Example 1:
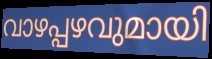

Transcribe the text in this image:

വാഴപ്പഴവുമായി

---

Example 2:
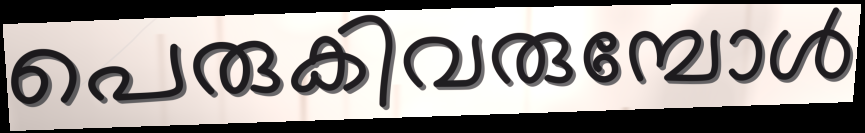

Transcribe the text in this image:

പെരുകിവരുമ്പോൾ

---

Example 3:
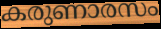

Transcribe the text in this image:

കരുണാരസം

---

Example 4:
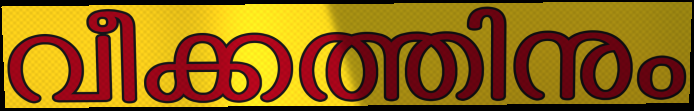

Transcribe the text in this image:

വീക്കത്തിനും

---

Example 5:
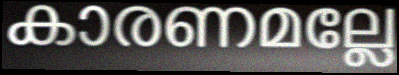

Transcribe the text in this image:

കാരണമല്ലേ